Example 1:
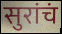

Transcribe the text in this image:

सुरांचं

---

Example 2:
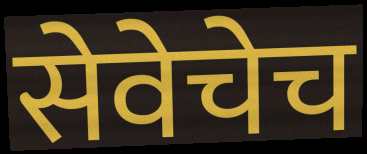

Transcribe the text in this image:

सेवेचेच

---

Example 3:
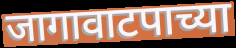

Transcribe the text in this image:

जागावाटपाच्या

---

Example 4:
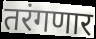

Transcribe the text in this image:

तरंगणार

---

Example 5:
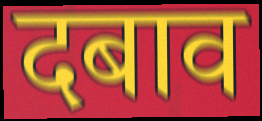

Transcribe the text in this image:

दबाव